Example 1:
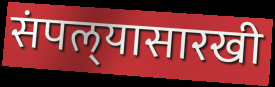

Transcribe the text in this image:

संपल्यासारखी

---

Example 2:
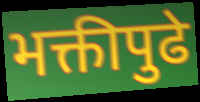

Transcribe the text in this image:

भक्तीपुढे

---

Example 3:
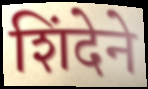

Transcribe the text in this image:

शिंदेने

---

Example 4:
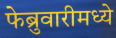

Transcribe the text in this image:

फेब्रुवारीमध्ये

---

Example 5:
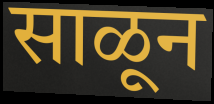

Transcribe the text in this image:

साळून